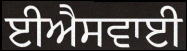
ਈਐਸਵਾਈ